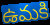
ఉమకి